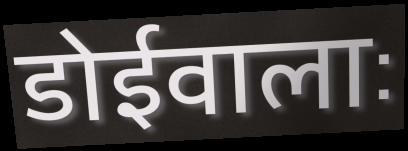
डोईवालाः